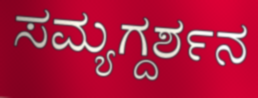
ಸಮ್ಯಗ್ದರ್ಶನ